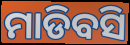
ମାଡିବସି